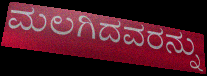
ಮಲಗಿದವರನ್ನು